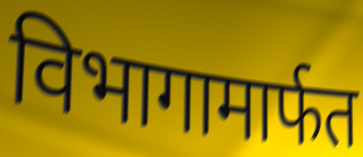
विभागामार्फत